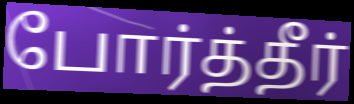
போர்த்தீர்